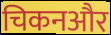
चिकनऔर